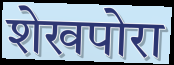
शेखपोरा